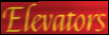
Elevators